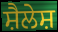
ਸ਼ੈਲੇਸ਼